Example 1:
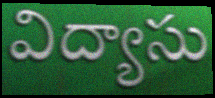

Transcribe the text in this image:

విద్యాసు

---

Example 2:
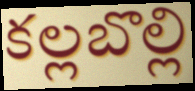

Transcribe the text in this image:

కల్లబొల్లి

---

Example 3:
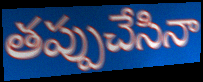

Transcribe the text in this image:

తప్పుచేసినా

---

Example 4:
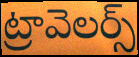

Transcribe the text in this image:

ట్రావెలర్స్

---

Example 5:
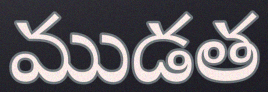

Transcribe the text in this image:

ముడత